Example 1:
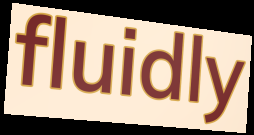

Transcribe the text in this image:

fluidly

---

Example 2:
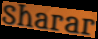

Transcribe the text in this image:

Sharar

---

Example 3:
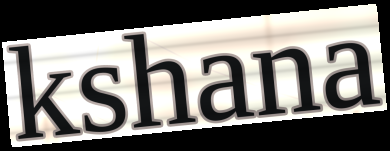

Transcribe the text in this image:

kshana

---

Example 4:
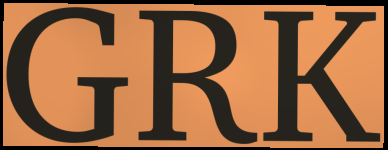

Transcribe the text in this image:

GRK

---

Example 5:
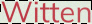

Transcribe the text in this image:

Witten